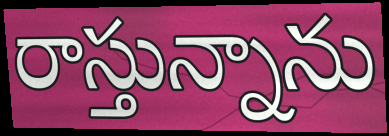
రాస్తున్నాను